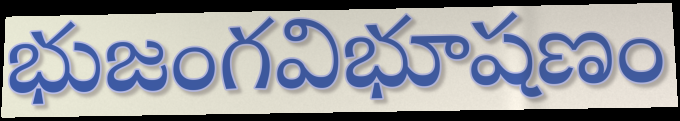
భుజంగవిభూషణం